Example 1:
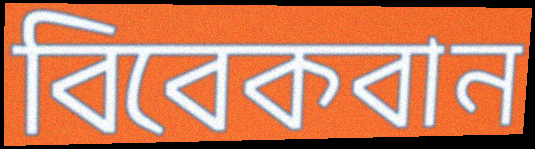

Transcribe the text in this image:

বিবেকবান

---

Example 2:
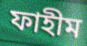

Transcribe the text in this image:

ফাহীম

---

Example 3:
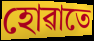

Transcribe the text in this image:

হোৱাতে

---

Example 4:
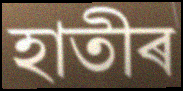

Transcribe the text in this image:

হাতীৰ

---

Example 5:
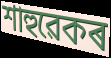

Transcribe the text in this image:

শাহুৱেকৰ